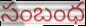
సంబంధ